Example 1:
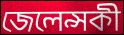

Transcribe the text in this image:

জেলেন্সকী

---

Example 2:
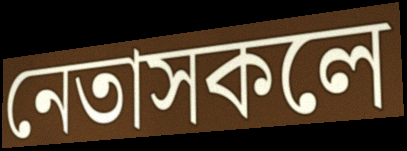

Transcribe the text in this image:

নেতাসকলে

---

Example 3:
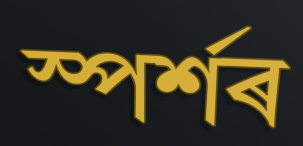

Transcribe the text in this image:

স্পৰ্শৰ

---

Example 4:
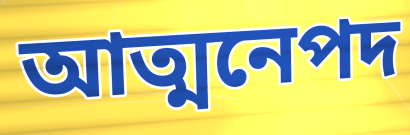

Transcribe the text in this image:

আত্মনেপদ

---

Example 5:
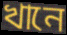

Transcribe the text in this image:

খানে